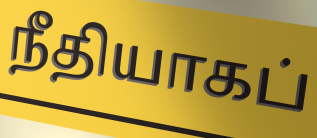
நீதியாகப்